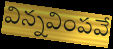
విన్నవింపవే